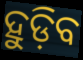
ହୁଡ଼ିବ